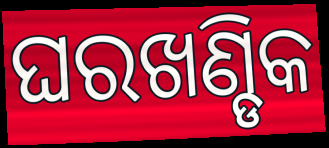
ଘରଖଣ୍ଡିକ